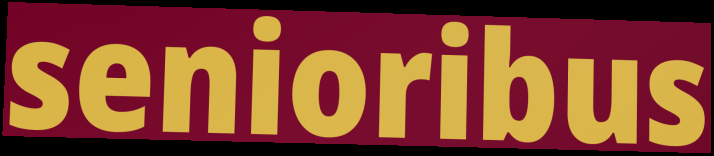
senioribus